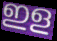
ഇള